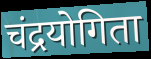
चंद्रयोगिता